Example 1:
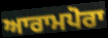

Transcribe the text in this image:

ਆਰਾਮਪੋਰਾ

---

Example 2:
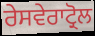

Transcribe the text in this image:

ਰੇਸਵੇਰਾਟ੍ਰੋਲ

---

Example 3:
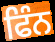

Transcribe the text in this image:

ਫਿੰਨ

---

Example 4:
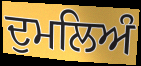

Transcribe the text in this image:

ਦੁਮਲਿਅੰ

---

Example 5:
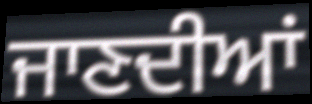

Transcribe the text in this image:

ਜਾਣਦੀਆਂ